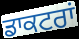
ਡਾਕਟਰਾਂ